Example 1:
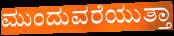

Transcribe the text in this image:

ಮುಂದುವರೆಯುತ್ತಾ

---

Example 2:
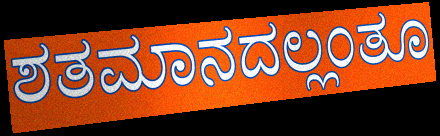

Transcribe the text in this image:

ಶತಮಾನದಲ್ಲಂತೂ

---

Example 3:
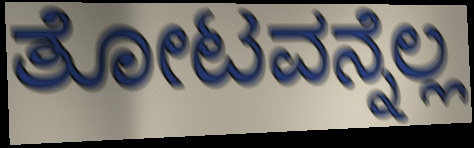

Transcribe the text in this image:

ತೋಟವನ್ನೆಲ್ಲ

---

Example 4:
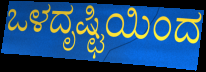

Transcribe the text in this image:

ಒಳದೃಷ್ಟಿಯಿಂದ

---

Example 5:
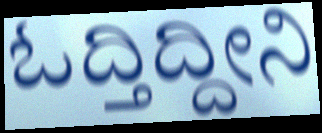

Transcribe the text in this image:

ಓದ್ತಿದ್ದೀನಿ